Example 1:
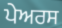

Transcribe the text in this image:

ਪੇਅਰਸ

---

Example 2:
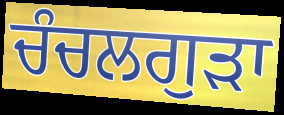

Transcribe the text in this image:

ਚੰਚਲਗੁੜਾ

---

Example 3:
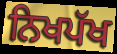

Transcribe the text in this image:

ਨਿਖਪੱਖ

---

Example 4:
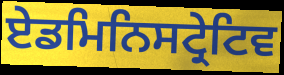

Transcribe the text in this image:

ਏਡਮਿਨਿਸਟ੍ਰੇਟਿਵ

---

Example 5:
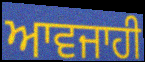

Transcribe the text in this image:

ਆਵਜਾਹੀ